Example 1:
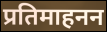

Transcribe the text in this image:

प्रतिमाहनन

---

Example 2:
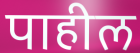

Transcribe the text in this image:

पाहील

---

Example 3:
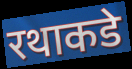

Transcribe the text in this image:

रथाकडे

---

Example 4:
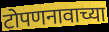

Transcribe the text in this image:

टोपणनावाच्या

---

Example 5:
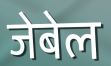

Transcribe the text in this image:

जेबेल